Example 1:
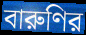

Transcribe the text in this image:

বারুণির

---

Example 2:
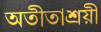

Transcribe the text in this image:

অতীতাশ্রয়ী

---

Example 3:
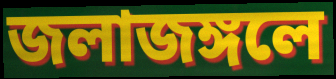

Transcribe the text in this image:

জলাজঙ্গলে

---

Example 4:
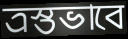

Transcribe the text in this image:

ত্রস্তভাবে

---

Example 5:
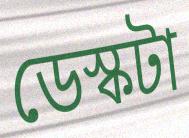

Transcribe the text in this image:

ডেস্কটা